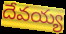
దేవయ్య